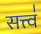
सत्त्व॑